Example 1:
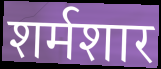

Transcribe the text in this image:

शर्मशार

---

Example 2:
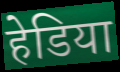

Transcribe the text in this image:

हेडिया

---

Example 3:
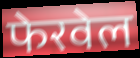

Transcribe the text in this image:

फेरवेल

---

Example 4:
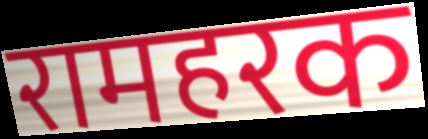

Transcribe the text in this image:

रामहरक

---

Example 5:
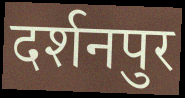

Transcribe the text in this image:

दर्शनपुर